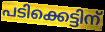
പടിക്കെട്ടിന്